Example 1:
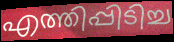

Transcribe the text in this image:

എത്തിപ്പിടിച്ച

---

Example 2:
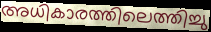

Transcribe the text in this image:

അധികാരത്തിലെത്തിച്ചു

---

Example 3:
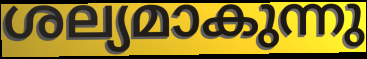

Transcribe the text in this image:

ശല്യമാകുന്നു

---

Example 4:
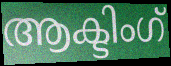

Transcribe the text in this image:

ആക്ടിംഗ്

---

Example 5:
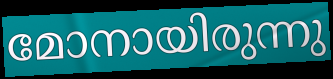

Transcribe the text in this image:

മോനായിരുന്നു